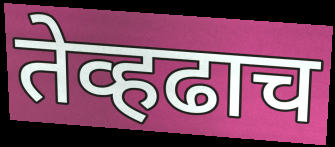
तेव्हढाच